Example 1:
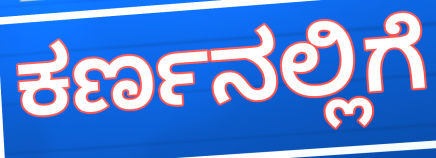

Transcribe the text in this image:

ಕರ್ಣನಲ್ಲಿಗೆ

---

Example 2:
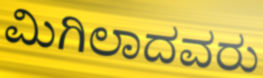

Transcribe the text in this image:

ಮಿಗಿಲಾದವರು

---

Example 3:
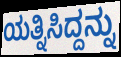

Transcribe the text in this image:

ಯತ್ನಿಸಿದ್ದನ್ನು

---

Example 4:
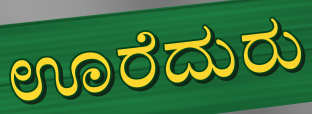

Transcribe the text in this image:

ಊರೆದುರು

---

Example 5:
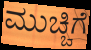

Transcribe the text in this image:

ಮುಚ್ಚಿಗೆ